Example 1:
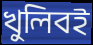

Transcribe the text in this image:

খুলিবই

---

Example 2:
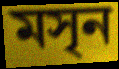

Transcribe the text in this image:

মসৃন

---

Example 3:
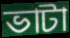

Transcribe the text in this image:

ভাটা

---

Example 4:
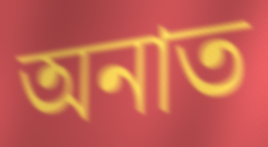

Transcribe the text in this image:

অনাত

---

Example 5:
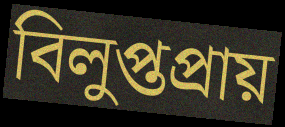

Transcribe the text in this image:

বিলুপ্তপ্ৰায়